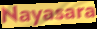
Nayasara